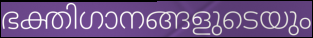
ഭക്തിഗാനങ്ങളുടെയും